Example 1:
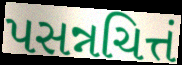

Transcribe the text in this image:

પસન્નચિત્તં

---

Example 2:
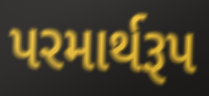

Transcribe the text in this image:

પરમાર્થરૂપ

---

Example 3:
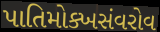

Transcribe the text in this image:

પાતિમોક્ખસંવરોવ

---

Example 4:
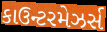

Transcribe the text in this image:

કાઉન્ટરમેઝર્સ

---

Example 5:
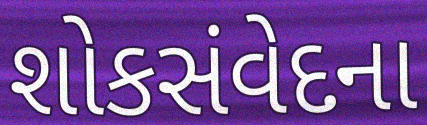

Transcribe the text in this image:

શોકસંવેદના